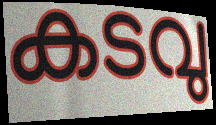
കടവു